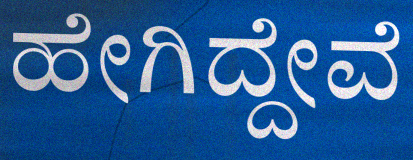
ಹೇಗಿದ್ದೇವೆ